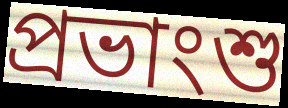
প্রভাংশু